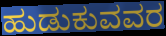
ಹುಡುಕುವವರ